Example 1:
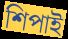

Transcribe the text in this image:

শিপাই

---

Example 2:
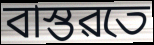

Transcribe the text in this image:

বাস্তৱতে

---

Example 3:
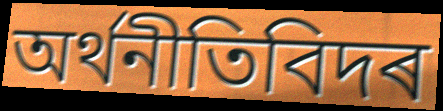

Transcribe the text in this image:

অৰ্থনীতিবিদৰ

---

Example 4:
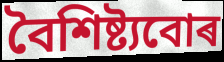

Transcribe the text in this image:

বৈশিষ্ট্যবোৰ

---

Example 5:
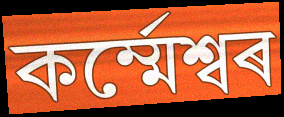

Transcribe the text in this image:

কৰ্ম্মেশ্বৰ